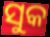
ସୁକ